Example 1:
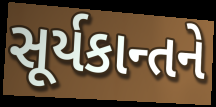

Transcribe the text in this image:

સૂર્યકાન્તને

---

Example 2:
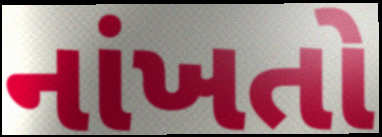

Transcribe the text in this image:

નાંખતો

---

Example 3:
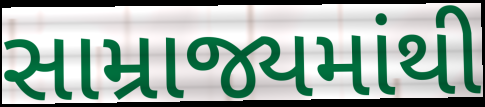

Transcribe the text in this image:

સામ્રાજ્યમાંથી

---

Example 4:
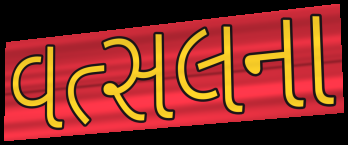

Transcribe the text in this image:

વત્સલના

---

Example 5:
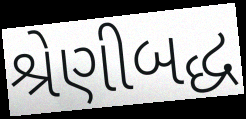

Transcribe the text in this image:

શ્રેણીબદ્ધ